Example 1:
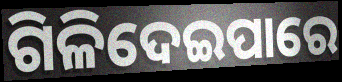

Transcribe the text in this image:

ଗିଳିଦେଇପାରେ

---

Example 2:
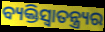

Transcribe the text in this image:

ବ୍ୟକ୍ତିସ୍ୱାତନ୍ତ୍ର୍ୟର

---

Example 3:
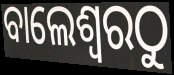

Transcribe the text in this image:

ବାଲେଶ୍ୱରଠୁ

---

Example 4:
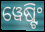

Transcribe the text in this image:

ୱେଷ୍ଟିଂ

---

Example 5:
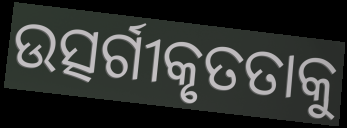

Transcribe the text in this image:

ଉତ୍ସର୍ଗୀକୃତତାକୁ